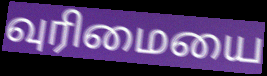
வுரிமையை